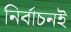
নির্বাচনই